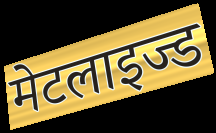
मेटलाइज्ड